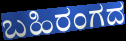
ಬಹಿರಂಗದ